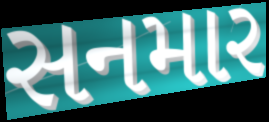
સનમાર